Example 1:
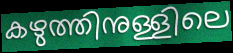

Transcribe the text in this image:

കഴുത്തിനുള്ളിലെ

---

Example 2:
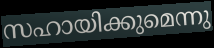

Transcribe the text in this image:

സഹായിക്കുമെന്നു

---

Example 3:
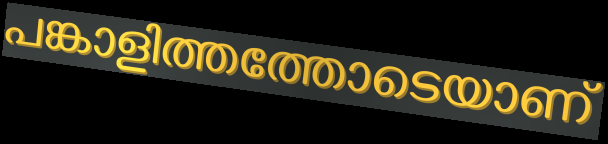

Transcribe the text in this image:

പങ്കാളിത്തത്തോടെയാണ്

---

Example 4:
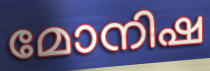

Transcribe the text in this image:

മോനിഷ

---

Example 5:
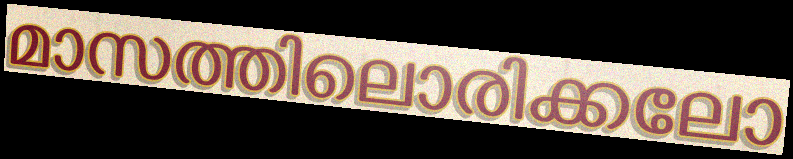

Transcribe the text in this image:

മാസത്തിലൊരിക്കലോ